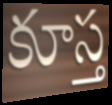
కూస్త